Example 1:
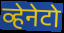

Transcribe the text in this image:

व्हेनेटो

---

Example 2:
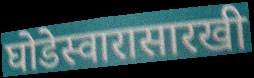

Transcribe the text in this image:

घोडेस्वारासारखी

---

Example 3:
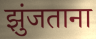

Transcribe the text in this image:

झुंजताना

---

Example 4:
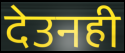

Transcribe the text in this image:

देउनही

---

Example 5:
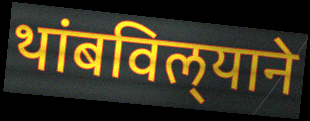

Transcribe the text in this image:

थांबविल्याने